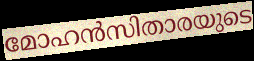
മോഹൻസിതാരയുടെ